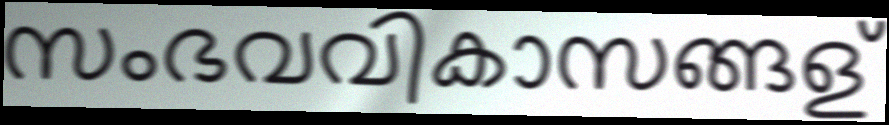
സംഭവവികാസങ്ങള്